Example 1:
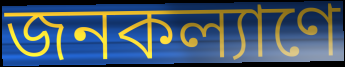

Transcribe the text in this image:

জনকল্যাণে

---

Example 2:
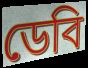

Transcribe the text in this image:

ডেবি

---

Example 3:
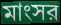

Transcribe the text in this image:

মাংসর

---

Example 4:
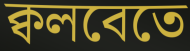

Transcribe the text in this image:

ক্বলবেতে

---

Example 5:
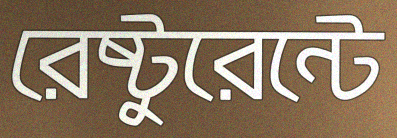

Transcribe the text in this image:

রেষ্টুরেন্টে